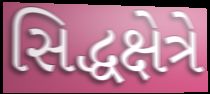
સિદ્ધક્ષેત્રે